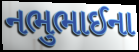
નભુભાઈના